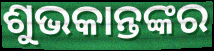
ଶୁଭକାନ୍ତଙ୍କର